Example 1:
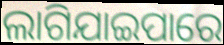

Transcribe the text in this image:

ଲାଗିଯାଇପାରେ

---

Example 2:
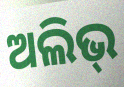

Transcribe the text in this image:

ଅଲିଭ୍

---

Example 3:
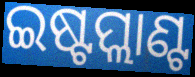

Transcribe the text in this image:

ଇଷ୍ଟପ୍ଲାଣ୍ଟ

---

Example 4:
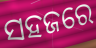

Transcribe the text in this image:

ସହଜରେ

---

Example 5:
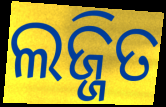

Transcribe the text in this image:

ଲଜ୍ଜିତ